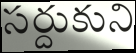
సర్దుకుని